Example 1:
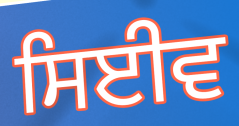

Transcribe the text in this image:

ਸਿਈਵ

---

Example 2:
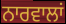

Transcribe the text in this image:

ਨਾਰਵਾਲਾਂ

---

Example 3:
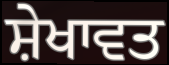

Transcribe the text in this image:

ਸ਼ੇਖਾਵਤ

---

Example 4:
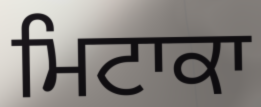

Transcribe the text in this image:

ਮਿਟਾਕਾ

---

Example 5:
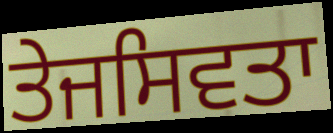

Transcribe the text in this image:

ਤੇਜਸਿਵਤਾ